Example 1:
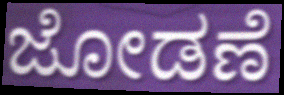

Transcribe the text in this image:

ಜೋಡಣೆ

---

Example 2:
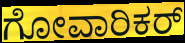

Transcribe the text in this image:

ಗೋವಾರಿಕರ್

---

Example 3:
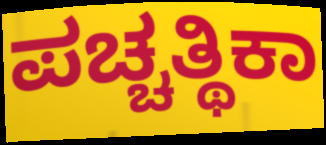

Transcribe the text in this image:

ಪಚ್ಚತ್ಥಿಕಾ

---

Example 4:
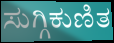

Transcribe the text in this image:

ಸುಗ್ಗಿಕುಣಿತ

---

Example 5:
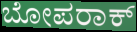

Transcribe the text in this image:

ಬೋಪರಾಕ್